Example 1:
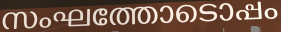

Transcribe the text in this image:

സംഘത്തോടൊപ്പം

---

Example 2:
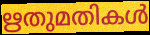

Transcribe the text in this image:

ഋതുമതികൾ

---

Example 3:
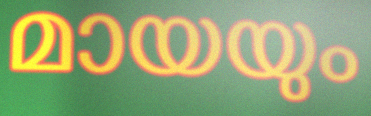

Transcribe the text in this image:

മായയും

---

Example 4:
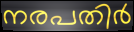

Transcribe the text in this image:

നരപതിർ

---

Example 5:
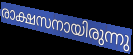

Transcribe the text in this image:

രാക്ഷസനായിരുന്നു